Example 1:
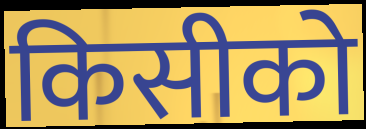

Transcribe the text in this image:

किसीको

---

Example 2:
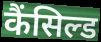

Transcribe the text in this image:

कैंसिल्ड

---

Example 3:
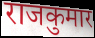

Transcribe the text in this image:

राजकुमार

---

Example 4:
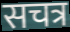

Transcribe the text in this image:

सचत्र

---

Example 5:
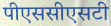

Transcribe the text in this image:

पीएससीएसटी